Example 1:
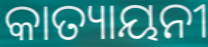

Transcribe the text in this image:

କାତ୍ୟାୟନୀ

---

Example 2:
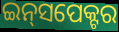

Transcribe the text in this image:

ଇନ୍‍ସପେକ୍ଟର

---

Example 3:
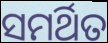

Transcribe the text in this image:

ସମର୍ଥିତ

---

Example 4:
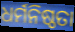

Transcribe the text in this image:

ଧର୍ମନିଷ୍ଠତା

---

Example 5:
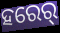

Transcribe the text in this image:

ହରେର୍